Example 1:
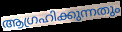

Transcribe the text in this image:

ആഗ്രഹിക്കുന്നതും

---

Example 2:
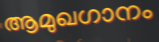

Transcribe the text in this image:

ആമുഖഗാനം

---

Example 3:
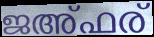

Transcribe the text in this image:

ജഅ്ഫര്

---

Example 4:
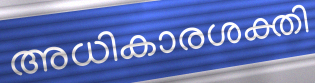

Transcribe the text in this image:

അധികാരശക്തി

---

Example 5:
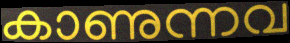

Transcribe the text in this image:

കാണുന്നവ